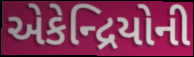
એકેન્દ્રિયોની